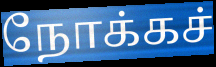
நோக்கச்